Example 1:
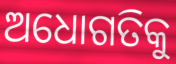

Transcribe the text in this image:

ଅଧୋଗତିକୁ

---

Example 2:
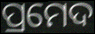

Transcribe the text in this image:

ପ୍ରମେଦ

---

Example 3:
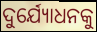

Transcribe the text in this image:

ଦୁର୍ଯ୍ୟୋଧନକୁ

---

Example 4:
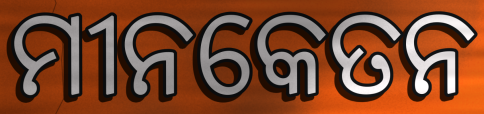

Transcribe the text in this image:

ମୀନକେତନ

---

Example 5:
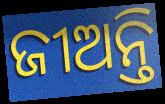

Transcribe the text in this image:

ଜୀଅନ୍ତି